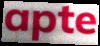
apte